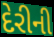
દેરીની